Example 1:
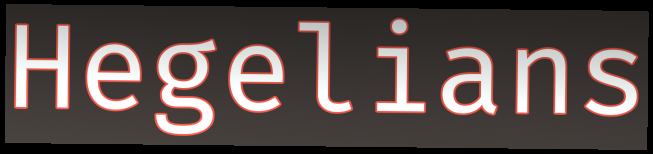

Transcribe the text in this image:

Hegelians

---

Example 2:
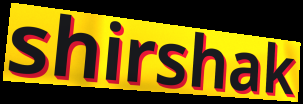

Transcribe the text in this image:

shirshak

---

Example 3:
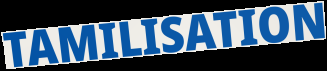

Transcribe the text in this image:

TAMILISATION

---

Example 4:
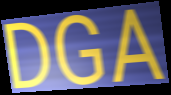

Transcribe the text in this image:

DGA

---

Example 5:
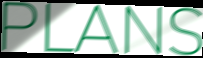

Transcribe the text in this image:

PLANS